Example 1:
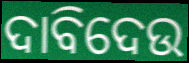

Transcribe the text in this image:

ଦାବିଦେଉ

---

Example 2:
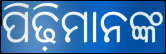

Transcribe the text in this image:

ପିଢ଼ିମାନଙ୍କ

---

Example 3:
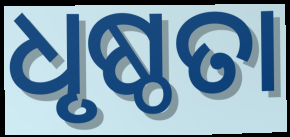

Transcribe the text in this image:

ଧୃଷ୍ଠତା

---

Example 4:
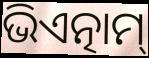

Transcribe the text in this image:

ଭିଏତ୍ନାମ୍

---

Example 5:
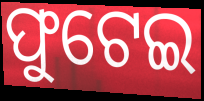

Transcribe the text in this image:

ଫୁଟେଇ